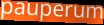
pauperum